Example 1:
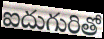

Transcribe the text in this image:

ఐదుగురితో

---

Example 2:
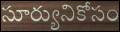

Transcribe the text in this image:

సూర్యునికోసం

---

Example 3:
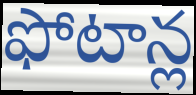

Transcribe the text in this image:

ఫోటాన్ల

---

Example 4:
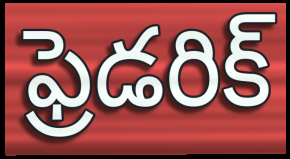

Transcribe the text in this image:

ఫ్రెడరిక్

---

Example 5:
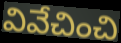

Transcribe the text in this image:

వివేచించి